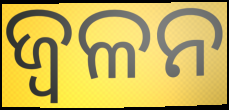
ଜ୍ୱଳନ